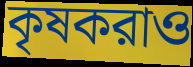
কৃষকরাও